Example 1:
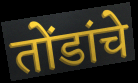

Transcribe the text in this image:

तोंडांचे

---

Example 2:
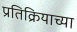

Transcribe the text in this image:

प्रतिक्रियाच्या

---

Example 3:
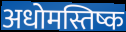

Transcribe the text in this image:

अधोमस्तिष्क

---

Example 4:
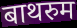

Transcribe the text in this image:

बाथरुम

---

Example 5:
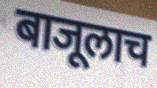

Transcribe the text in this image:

बाजूलाच